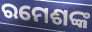
ରମେଶଙ୍କ